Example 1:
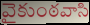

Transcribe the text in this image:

వైకుంఠవాసి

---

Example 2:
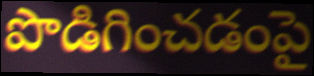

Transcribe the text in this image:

పొడిగించడంపై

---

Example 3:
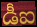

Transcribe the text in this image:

డీఐ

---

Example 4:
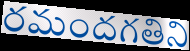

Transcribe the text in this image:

రమందగతిని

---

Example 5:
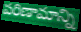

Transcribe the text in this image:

పరిణామాన్ని